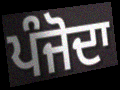
ਪੰਜੋਦਾ